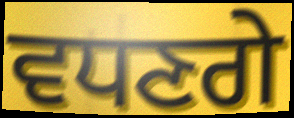
ਵਧਣਗੇ